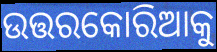
ଉତ୍ତରକୋରିଆକୁ